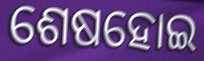
ଶେଷହୋଇ